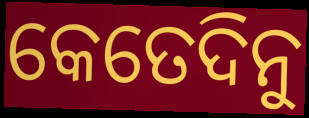
କେତେଦିନୁ